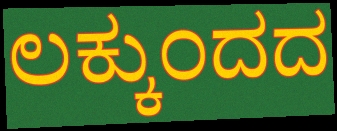
ಲಕ್ಕುಂದದ